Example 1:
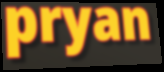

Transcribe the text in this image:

pryan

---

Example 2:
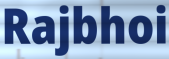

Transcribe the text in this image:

Rajbhoi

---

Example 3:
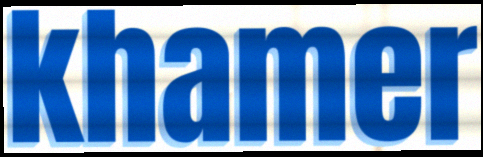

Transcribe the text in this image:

khamer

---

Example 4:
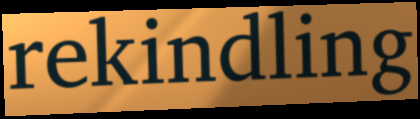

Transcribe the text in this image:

rekindling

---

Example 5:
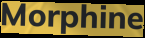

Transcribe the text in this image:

Morphine